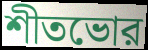
শীতভোর